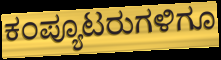
ಕಂಪ್ಯೂಟರುಗಳಿಗೂ